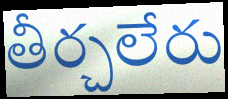
తీర్చలేరు